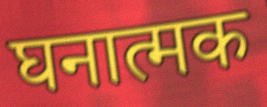
घनात्मक